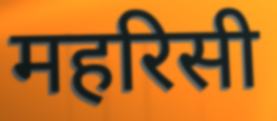
महरिसी